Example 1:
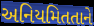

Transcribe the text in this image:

અનિયમિતતાને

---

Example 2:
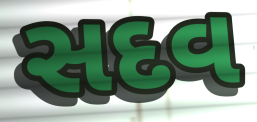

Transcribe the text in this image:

સદવ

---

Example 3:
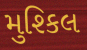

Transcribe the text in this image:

મુશ્કિલ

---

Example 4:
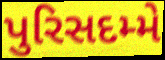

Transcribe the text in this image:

પુરિસદમ્મે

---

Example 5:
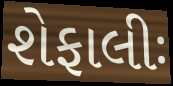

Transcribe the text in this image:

શેફાલીઃ